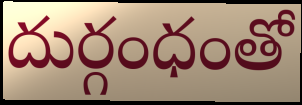
దుర్గంధంతో